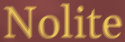
Nolite